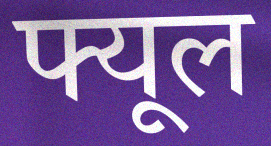
फ्यूल